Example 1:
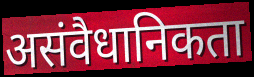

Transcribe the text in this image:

असंवैधानिकता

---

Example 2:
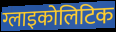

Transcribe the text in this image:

ग्लाइकोलिटिक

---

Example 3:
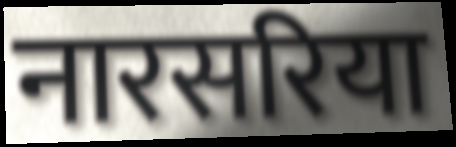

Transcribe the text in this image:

नारसरिया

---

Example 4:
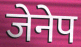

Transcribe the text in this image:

जेनेप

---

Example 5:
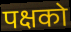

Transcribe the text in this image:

पक्षको